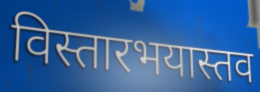
विस्तारभयास्तव